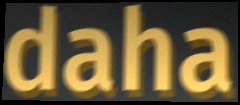
daha